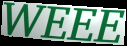
WEEE